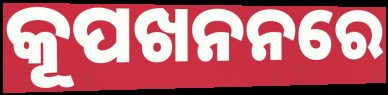
କୂପଖନନରେ